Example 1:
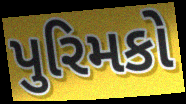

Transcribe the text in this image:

પુરિમકો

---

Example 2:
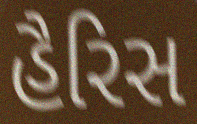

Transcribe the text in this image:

હૈરિસ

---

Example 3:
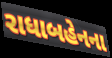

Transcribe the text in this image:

રાધાબહેનના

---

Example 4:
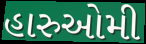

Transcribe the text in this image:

હારુઓમી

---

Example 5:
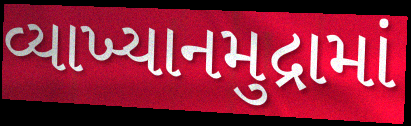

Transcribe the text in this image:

વ્યાખ્યાનમુદ્રામાં